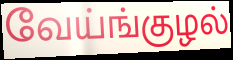
வேய்ங்குழல்